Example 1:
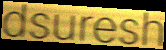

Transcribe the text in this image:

dsuresh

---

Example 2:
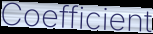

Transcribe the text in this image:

Coefficient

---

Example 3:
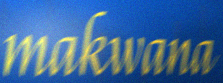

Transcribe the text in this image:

makwana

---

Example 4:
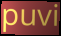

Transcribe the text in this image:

puvi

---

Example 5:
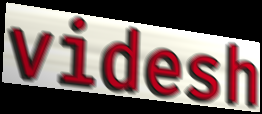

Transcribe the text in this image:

videsh